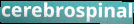
cerebrospinal